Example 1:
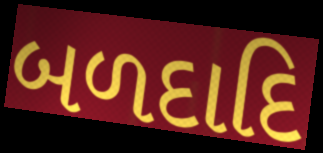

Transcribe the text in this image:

બળદાદિ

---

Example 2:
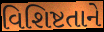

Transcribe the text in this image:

વિશિષ્ટતાને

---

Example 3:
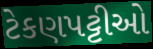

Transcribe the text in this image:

ટેકણપટ્ટીઓ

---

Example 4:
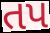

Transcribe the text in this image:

તપ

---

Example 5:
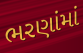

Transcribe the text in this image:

ભરણાંમાં